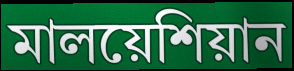
মালয়েশিয়ান